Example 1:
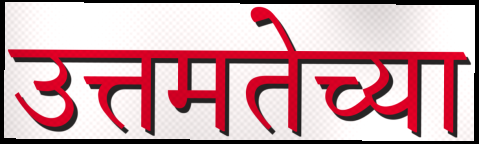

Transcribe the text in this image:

उत्तमतेच्या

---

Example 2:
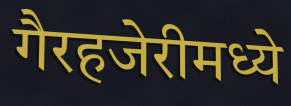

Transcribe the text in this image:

गैरहजेरीमध्ये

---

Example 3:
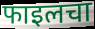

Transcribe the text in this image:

फाइलचा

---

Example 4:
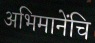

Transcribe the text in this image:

अभिमानेंचि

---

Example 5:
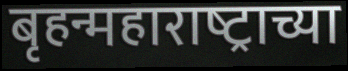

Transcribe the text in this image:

बृहन्महाराष्ट्राच्या